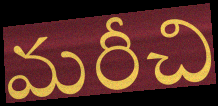
మరీచి